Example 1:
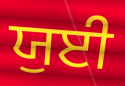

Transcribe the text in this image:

ਯੁਈ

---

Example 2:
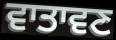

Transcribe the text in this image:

ਵਾਤਾਵਣ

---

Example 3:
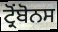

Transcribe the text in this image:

ਟ੍ਰੋਂਬੋਨਸ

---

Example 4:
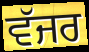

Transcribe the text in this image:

ਵੱਜਰ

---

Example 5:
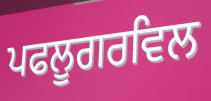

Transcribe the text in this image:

ਪਫਲੂਗਰਵਿਲ